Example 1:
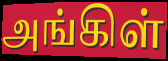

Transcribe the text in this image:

அங்கிள்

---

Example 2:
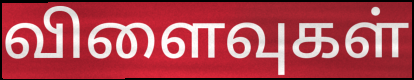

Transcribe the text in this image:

விளைவுகள்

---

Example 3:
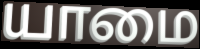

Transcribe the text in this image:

யாமை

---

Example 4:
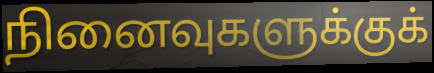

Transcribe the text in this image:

நினைவுகளுக்குக்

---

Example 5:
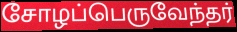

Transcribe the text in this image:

சோழப்பெருவேந்தர்